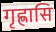
गृह्णासि